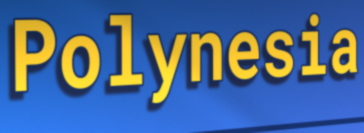
Polynesia